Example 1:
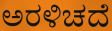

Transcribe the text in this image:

ಅರಳಿಚದೆ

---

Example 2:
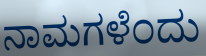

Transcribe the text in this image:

ನಾಮಗಳೆಂದು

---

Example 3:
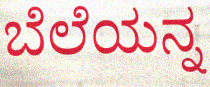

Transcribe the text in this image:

ಬೆಲೆಯನ್ನ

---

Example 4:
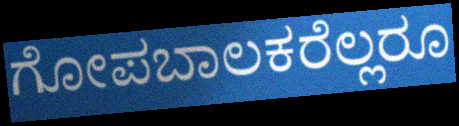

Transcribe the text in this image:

ಗೋಪಬಾಲಕರೆಲ್ಲರೂ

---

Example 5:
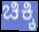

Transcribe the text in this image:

ಚಿಕ್ಕಿ